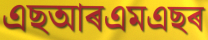
এছআৰএমএছৰ